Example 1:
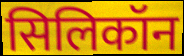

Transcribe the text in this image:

सिलिकॉन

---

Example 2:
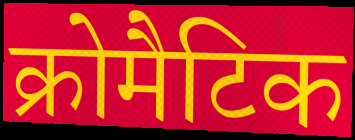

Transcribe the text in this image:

क्रोमैटिक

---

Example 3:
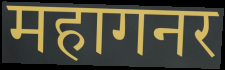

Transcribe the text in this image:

महागनर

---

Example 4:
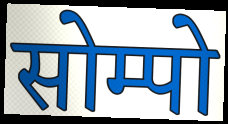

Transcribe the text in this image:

सोम्पो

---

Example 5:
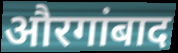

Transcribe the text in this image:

औरगांबाद